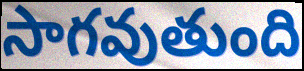
సాగవుతుంది